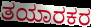
ತಯಾರಕರ